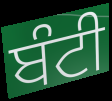
ਬੰਟੀ